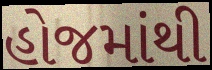
હોજમાંથી